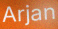
Arjan